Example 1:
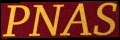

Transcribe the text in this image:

PNAS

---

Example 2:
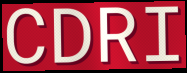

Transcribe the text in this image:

CDRI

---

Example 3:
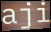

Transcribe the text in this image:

aji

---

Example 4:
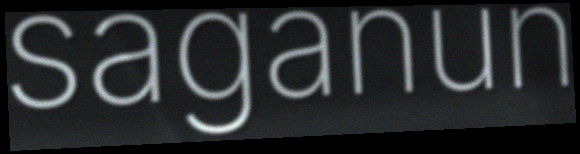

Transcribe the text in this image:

saganun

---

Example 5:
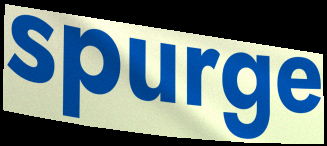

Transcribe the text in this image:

spurge